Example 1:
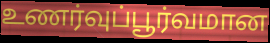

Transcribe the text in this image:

உணர்வுப்பூர்வமான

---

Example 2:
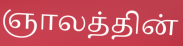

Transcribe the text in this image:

ஞாலத்தின்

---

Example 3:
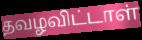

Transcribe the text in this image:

தவழவிட்டாள்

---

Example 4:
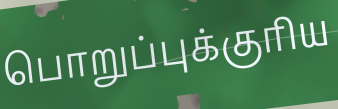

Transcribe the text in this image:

பொறுப்புக்குரிய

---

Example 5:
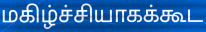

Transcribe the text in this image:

மகிழ்ச்சியாகக்கூட